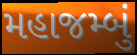
મહાજમ્બું